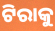
ଟିରାକୁ